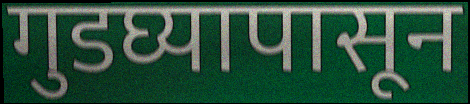
गुडघ्यापासून